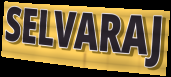
SELVARAJ